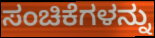
ಸಂಚಿಕೆಗಳನ್ನು